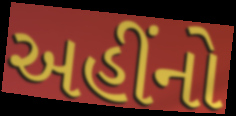
અહીંનો